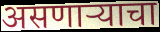
असणाऱ्याचा